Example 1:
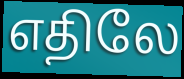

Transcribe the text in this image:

எதிலே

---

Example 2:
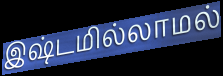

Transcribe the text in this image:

இஷ்டமில்லாமல்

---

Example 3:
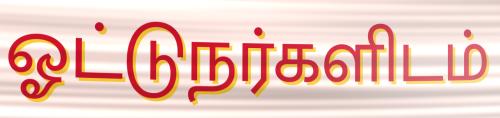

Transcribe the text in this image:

ஓட்டுநர்களிடம்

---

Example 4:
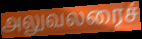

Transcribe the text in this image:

அலுவலரைச்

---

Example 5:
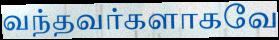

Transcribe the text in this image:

வந்தவர்களாகவே